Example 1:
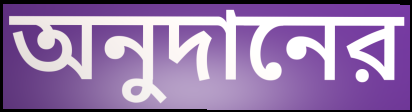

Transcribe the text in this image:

অনুদানের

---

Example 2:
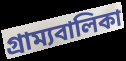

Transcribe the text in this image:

গ্রাম্যবালিকা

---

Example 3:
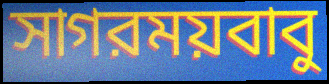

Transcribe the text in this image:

সাগরময়বাবু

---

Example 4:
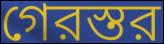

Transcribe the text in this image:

গেরস্তর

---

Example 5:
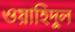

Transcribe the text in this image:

ওয়াহিদুল